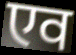
एव